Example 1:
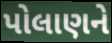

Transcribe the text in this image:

પોલાણને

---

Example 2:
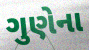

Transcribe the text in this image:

ગુણેના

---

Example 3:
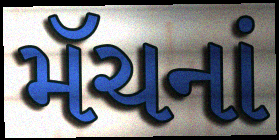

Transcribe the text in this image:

મૅચનાં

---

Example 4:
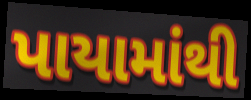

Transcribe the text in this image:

પાયામાંથી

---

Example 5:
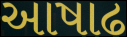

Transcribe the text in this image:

આષાઢ